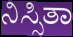
ನಿಸ್ಸಿತಾ